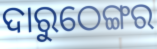
ଦାରୁଠେଙ୍ଗର